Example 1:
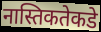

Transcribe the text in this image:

नास्तिकतेकडे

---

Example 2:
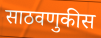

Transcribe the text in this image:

साठवणुकीस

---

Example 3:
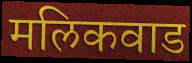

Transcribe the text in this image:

मलिकवाड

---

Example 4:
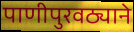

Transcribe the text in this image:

पाणीपुरवठ्याने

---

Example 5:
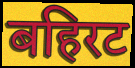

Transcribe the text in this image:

बहिरट